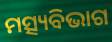
ମତ୍ସ୍ୟବିଭାଗ